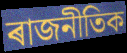
ৰাজনীতিক